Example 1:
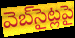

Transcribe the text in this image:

వెబ్‌సైట్లపై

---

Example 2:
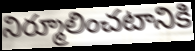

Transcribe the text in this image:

నిర్మూలించటానికి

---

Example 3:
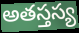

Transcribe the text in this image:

అతస్తస్య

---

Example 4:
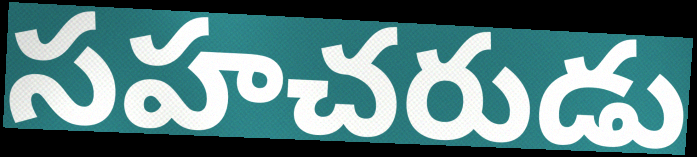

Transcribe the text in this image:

సహచరుడు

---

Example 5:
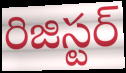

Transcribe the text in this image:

రిజిస్టర్